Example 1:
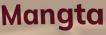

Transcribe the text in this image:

Mangta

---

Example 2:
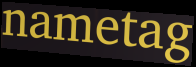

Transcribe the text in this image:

nametag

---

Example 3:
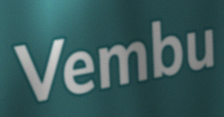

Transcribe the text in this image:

Vembu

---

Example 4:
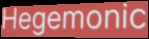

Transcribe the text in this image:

Hegemonic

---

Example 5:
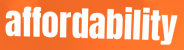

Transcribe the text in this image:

affordability